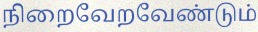
நிறைவேறவேண்டும்